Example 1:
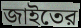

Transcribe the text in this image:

জাইতের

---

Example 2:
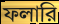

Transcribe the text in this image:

ফলারি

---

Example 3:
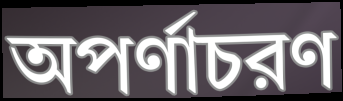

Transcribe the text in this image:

অপর্ণাচরণ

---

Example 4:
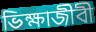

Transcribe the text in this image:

ভিক্ষাজীবী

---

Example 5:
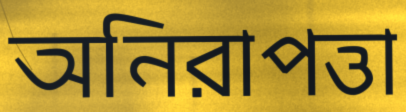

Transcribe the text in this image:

অনিরাপত্তা